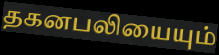
தகனபலியையும்